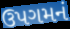
ઉપગમનં